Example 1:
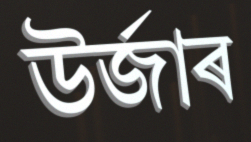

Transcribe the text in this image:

উৰ্জাৰ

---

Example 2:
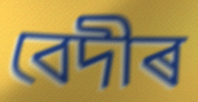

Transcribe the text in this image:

বেদীৰ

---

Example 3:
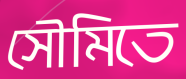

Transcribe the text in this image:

সৌমিতে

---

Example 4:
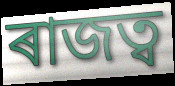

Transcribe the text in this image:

ৰাজত্ব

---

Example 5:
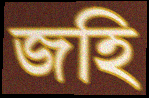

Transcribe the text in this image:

জহি